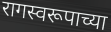
रागस्वरूपाच्या